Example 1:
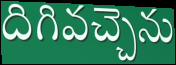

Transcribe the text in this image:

దిగివచ్చెను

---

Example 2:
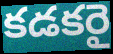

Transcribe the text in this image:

కడకరై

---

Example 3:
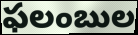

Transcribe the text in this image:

ఫలంబుల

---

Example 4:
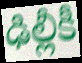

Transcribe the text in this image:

ఢిల్లీకీ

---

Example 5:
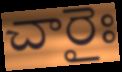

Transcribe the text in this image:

చారైః